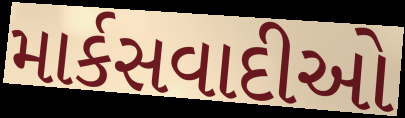
માર્કસવાદીઓ